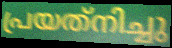
പ്രയത്‌നിച്ചു